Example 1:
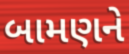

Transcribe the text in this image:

બામણને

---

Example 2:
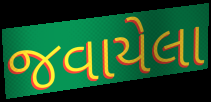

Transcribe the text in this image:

જવાયેલા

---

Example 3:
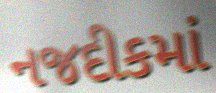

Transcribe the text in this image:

નજદીકમાં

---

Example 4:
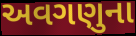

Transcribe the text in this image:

અવગણુના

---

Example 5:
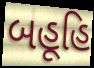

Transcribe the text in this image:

બહૂહિ